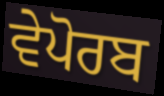
ਵੇਪੋਰਬ